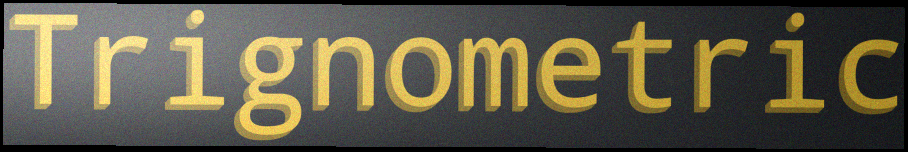
Trignometric